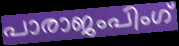
പാരാജംപിംഗ്